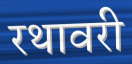
रथावरी